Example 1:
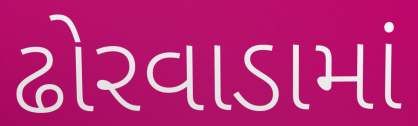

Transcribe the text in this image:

ઢોરવાડામાં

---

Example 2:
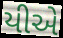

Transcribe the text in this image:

યીએ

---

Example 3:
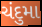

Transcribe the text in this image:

ચંદુમા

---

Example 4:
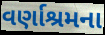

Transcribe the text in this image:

વર્ણાશ્રમના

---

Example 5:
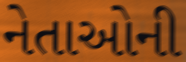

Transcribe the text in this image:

નેતાઓની